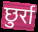
छुर्रा